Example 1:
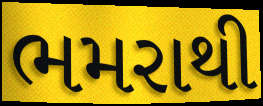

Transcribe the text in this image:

ભમરાથી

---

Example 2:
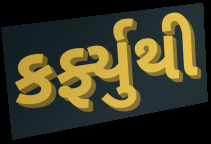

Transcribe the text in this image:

કર્ફ્યુથી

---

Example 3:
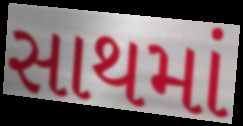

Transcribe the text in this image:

સાથમાં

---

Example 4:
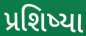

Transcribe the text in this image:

પ્રશિષ્યા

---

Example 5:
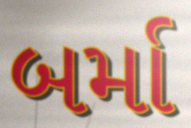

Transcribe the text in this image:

બર્મા